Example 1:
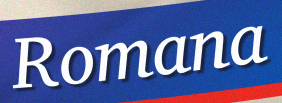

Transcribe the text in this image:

Romana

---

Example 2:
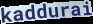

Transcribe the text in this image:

kaddurai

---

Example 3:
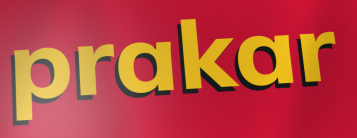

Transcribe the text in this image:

prakar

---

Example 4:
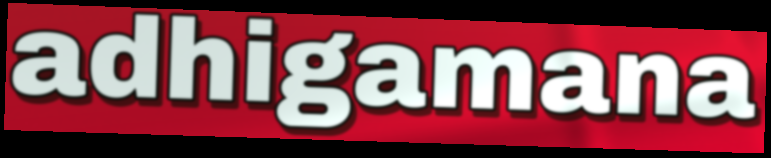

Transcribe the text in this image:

adhigamana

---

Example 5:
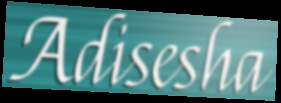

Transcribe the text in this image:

Adisesha